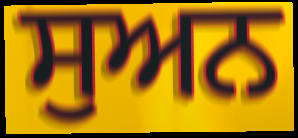
ਸੁਅਨ